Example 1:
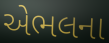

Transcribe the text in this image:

એભલના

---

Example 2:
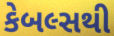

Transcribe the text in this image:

કેબલ્સથી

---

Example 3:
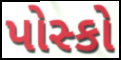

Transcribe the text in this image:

પોસ્કો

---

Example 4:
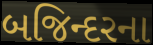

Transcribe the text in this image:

બજિન્દરના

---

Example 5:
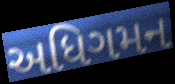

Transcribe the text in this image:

અધિગમન